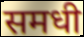
समधी